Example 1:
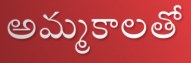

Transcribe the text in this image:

అమ్మకాలతో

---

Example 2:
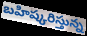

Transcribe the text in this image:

బహిష్కరిస్తున్న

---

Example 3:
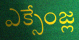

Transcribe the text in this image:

ఎక్సేంజ్ల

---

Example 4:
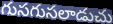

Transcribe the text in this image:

గుసగుసలాడుచు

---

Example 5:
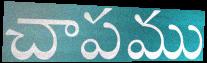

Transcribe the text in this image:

చాపము